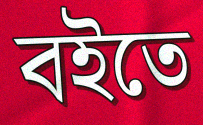
বইতে